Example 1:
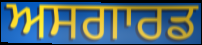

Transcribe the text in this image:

ਅਸਗਾਰਡ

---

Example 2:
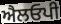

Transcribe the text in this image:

ਐਲਓਪੀ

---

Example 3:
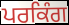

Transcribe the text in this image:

ਪਰਕਿੰਗ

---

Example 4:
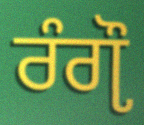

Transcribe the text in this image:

ਰੰਗੵੌ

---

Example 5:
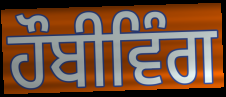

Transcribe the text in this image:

ਹੌਬੀਵਿੰਗ